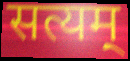
सत्यम्